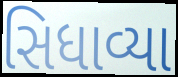
સિધાવ્યા